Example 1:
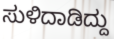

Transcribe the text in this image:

ಸುಳಿದಾಡಿದ್ದು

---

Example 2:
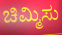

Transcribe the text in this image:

ಚಿಮ್ಮಿಸು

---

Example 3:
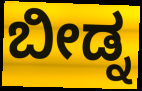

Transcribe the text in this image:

ಬೀಡ್ನ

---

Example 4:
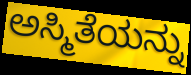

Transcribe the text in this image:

ಅಸ್ಮಿತೆಯನ್ನು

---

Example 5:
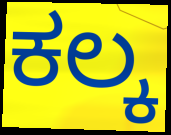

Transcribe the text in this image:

ಕಲ್ಕ